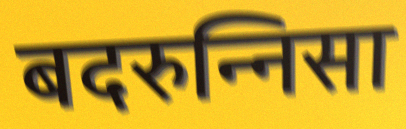
बदरुन्निसा